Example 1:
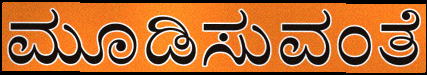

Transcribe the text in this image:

ಮೂಡಿಸುವಂತೆ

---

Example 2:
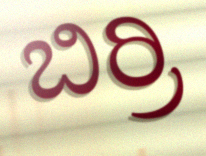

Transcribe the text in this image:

ಬಿರ್ರಿ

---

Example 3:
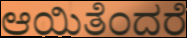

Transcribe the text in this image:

ಆಯಿತೆಂದರೆ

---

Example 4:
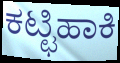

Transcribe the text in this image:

ಕಟ್ಟಿಹಾಕಿ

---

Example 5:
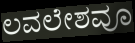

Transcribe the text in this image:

ಲವಲೇಶವೂ